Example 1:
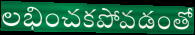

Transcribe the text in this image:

లభించకపోవడంతో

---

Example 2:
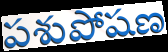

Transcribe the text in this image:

పశుపోషణ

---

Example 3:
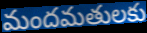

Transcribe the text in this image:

మందమతులకు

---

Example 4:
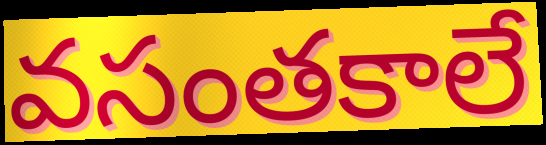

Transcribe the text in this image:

వసంతకాలే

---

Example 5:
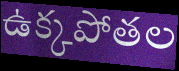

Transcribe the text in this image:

ఉక్కపోతల